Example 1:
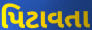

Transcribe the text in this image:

પિટાવતા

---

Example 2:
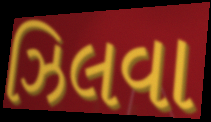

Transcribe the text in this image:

ઝિલવા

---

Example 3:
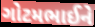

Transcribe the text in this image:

ગોટમભાઈને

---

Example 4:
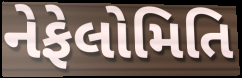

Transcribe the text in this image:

નેફેલોમિતિ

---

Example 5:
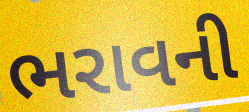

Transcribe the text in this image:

ભરાવની